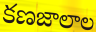
కణజాలాల